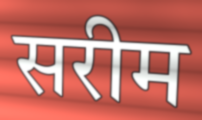
सरीम